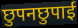
छुपनछुपाई